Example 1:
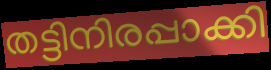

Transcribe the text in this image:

തട്ടിനിരപ്പാക്കി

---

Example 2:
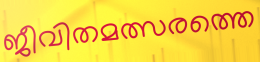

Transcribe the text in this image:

ജീവിതമത്സരത്തെ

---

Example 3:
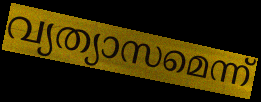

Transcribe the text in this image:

വ്യത്യാസമെന്ന്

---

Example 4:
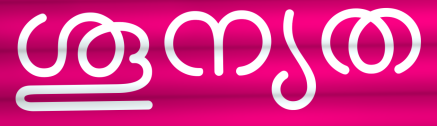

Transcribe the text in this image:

ശൂന്യത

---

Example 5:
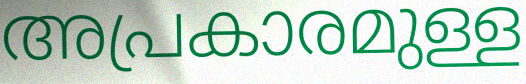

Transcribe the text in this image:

അപ്രകാരമുള്ള